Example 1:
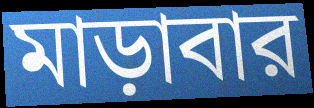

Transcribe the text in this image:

মাড়াবার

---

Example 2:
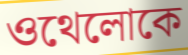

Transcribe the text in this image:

ওথেলোকে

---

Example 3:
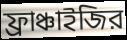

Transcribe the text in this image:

ফ্রাঞ্চাইজির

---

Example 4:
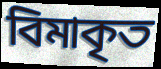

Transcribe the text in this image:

বিমাকৃত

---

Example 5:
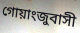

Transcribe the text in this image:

গোয়াংজুবাসী